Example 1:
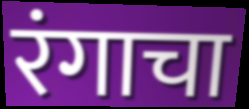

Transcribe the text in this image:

रंगाचा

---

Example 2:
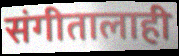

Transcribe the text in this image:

संगीतालाही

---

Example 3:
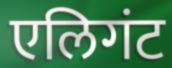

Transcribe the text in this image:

एलिगंट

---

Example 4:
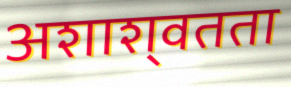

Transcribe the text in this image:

अशाश्वतता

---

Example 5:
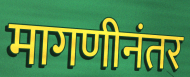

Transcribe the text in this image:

मागणीनंतर